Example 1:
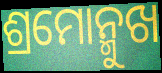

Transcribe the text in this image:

ଶ୍ରମୋନ୍ମୁଖ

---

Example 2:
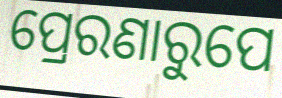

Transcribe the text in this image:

ପ୍ରେରଣାରୁପେ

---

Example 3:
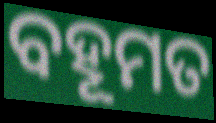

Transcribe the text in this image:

ବହୂମତ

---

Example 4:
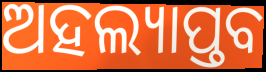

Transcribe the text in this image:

ଅହଲ୍ୟାପ୍ତବ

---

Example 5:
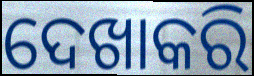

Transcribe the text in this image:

ଦେଖାକରି